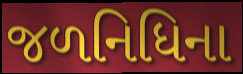
જળનિધિના